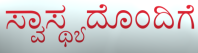
ಸ್ವಾಸ್ಥ್ಯದೊಂದಿಗೆ